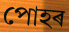
পোহৰ